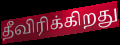
தீவிரிக்கிறது